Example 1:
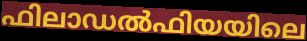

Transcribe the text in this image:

ഫിലാഡൽഫിയയിലെ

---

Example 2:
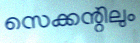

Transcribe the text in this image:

സെക്കന്റിലും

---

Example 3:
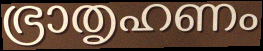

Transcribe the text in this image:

ഭ്രാതൃഹണം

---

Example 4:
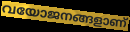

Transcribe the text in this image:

വയോജനങ്ങളാണ്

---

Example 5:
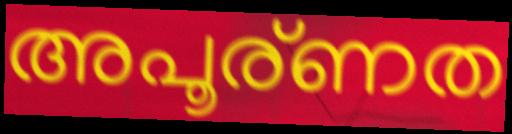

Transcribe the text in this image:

അപൂര്ണത